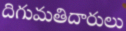
దిగుమతిదారులు